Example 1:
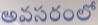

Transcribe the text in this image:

అవసరంలో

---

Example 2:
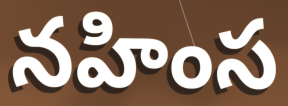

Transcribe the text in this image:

నహింస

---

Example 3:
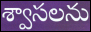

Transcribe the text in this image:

శ్వాసలను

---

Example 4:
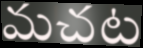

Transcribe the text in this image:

మచట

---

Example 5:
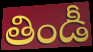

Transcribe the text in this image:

తిండీ